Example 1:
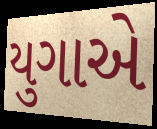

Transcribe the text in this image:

યુગાએ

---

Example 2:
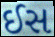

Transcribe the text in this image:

ઈસ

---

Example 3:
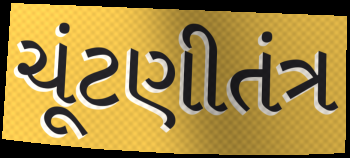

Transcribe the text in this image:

ચૂંટણીતંત્ર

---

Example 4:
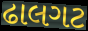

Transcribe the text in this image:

ઢાલગટ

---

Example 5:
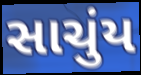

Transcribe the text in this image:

સાચુંય